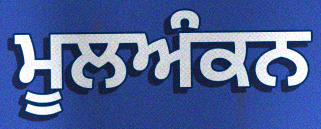
ਮੂਲਅੰਕਨ